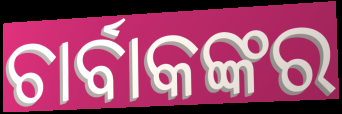
ଚାର୍ବାକଙ୍କର